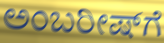
ಅಂಬರೀಷ್‌ಗೆ